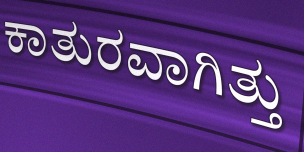
ಕಾತುರವಾಗಿತ್ತು